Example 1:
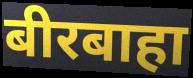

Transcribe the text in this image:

बीरबाहा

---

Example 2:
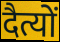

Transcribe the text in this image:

दैत्यों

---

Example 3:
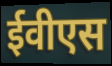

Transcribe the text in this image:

ईवीएस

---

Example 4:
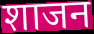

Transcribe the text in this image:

शाजन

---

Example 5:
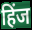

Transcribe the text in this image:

हिंज